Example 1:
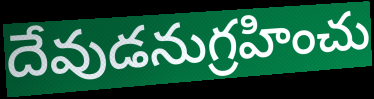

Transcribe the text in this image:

దేవుడనుగ్రహించు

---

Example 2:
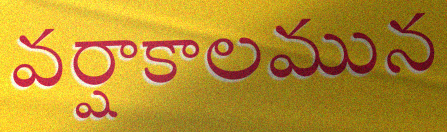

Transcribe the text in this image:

వర్షాకాలమున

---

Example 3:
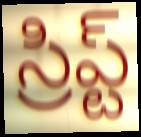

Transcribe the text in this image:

స్రిప్ట్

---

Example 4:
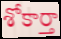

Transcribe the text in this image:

శోకార్తా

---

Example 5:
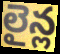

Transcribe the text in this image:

లైన్ల